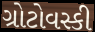
ગ્રોટોવસ્કી